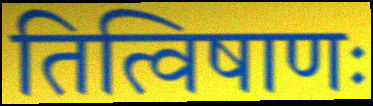
तित्विषाणः